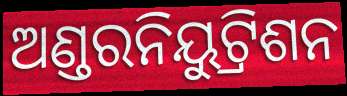
ଅଣ୍ଡରନିୟୁଟ୍ରିଶନ